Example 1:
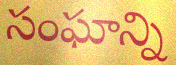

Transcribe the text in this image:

సంఘాన్ని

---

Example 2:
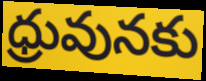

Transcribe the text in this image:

ధ్రువునకు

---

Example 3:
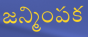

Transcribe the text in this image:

జన్మింపక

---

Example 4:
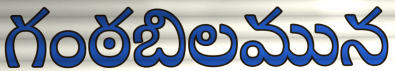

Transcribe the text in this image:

గంఠబిలమున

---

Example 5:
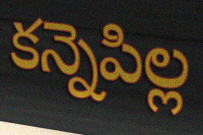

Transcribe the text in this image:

కన్నెపిల్ల